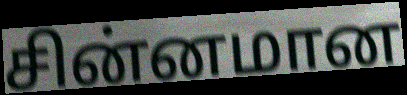
சின்னமான